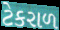
ટેકરાળ